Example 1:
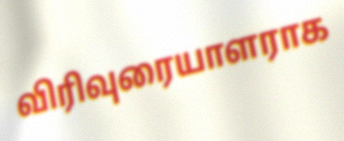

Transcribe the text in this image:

விரிவுரையாளராக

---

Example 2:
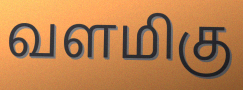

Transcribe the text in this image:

வளமிகு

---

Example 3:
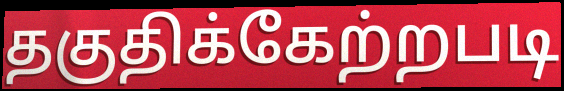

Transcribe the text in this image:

தகுதிக்கேற்றபடி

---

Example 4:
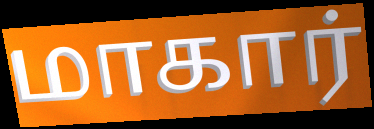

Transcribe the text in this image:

மாகார்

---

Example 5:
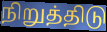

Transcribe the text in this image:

நிறுத்திடு